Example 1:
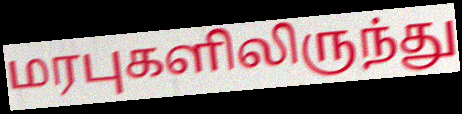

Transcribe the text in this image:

மரபுகளிலிருந்து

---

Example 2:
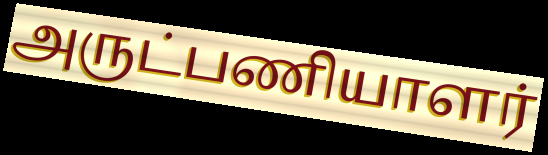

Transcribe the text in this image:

அருட்பணியாளர்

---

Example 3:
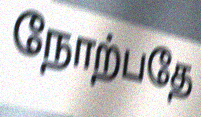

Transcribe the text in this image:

நோற்பதே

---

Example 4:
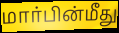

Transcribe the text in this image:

மார்பின்மீது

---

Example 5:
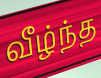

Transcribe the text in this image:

வீழ்ந்த